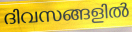
ദിവസങ്ങളിൽ